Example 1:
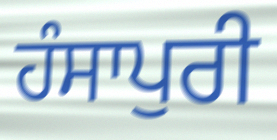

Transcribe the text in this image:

ਹੰਸਾਪੁਰੀ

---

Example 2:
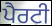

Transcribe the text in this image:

ਪੈਰਟੀ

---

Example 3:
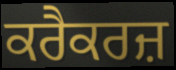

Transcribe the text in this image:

ਕਰੈਕਰਜ਼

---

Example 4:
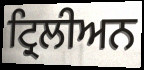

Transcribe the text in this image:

ਟ੍ਰਿਲੀਅਨ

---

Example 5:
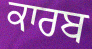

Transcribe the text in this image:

ਕਾਰਬ